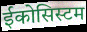
ईकोसिस्‍टम